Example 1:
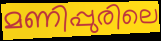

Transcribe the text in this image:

മണിപ്പുരിലെ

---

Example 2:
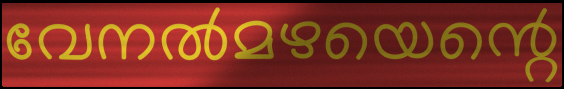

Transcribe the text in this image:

വേനൽമഴയെന്റെ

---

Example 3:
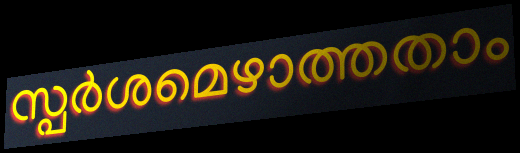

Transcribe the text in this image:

സ്പർശമെഴാത്തതാം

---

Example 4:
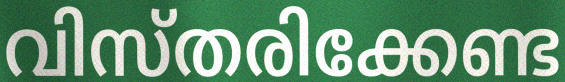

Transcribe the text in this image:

വിസ്തരിക്കേണ്ട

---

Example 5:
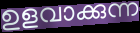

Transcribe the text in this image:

ഉളവാക്കുന്ന